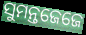
ସୁମନ୍ତଜେଜେ